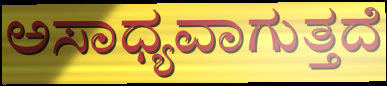
ಅಸಾಧ್ಯವಾಗುತ್ತದೆ